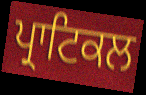
ਪ੍ਰਾਟਿਕਲ